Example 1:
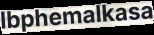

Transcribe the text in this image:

lbphemalkasa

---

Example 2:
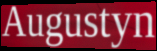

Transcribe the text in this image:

Augustyn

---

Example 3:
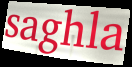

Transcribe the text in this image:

saghla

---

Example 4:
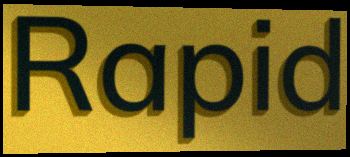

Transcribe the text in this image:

Rapid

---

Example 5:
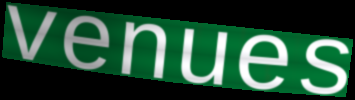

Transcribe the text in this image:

venues